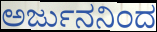
ಅರ್ಜುನನಿಂದ